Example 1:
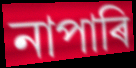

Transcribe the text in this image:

নাপাৰি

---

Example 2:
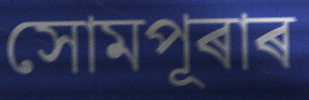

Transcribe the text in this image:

সোমপূৰাৰ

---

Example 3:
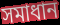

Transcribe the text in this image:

সমাধান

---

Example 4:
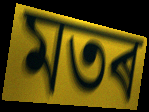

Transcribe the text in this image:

মতৰ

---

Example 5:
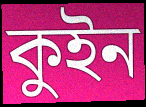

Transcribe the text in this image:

কুইন